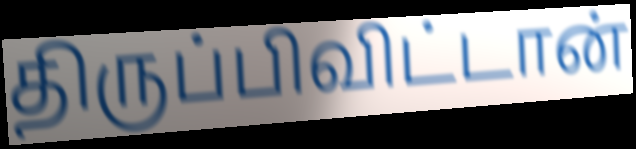
திருப்பிவிட்டான்